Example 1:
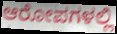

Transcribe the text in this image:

ಆರೋಪಗಳಲ್ಲಿ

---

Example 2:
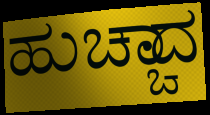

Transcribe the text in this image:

ಹುಚ್ಚಾದ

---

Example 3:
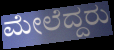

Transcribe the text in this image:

ಮೇಲೆದ್ದರು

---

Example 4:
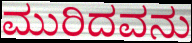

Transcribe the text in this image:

ಮುರಿದವನು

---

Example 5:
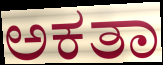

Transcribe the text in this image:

ಅಕತಾ